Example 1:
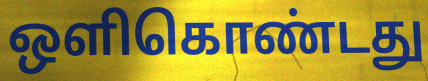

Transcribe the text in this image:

ஒளிகொண்டது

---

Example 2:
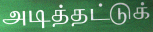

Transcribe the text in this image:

அடித்தட்டுக்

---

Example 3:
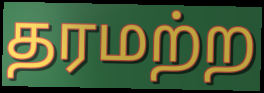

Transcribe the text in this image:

தரமற்ற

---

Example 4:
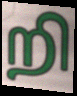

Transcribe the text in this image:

றி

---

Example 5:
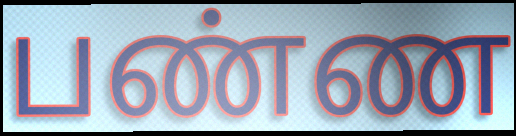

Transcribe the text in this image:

பண்ண